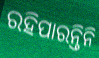
ରହିପାରନ୍ତିନି